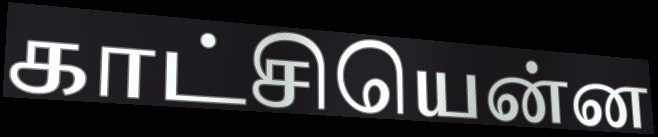
காட்சியென்ன